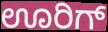
ಊರಿಗ್